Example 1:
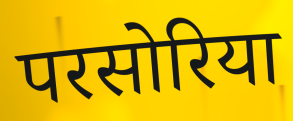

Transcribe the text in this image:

परसोरिया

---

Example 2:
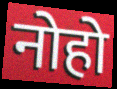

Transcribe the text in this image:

नोहो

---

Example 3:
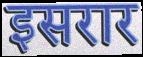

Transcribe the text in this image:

इसरार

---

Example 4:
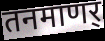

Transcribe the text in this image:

तनमाणर्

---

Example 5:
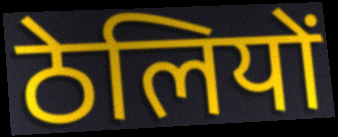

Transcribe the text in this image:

ठेलियों